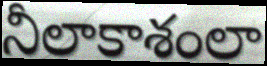
నీలాకాశంలా